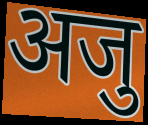
अजु